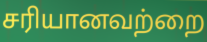
சரியானவற்றை